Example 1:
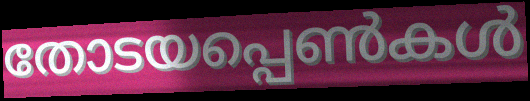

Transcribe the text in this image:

തോടയപ്പെൺകൾ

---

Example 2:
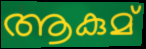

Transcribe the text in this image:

ആകുമ്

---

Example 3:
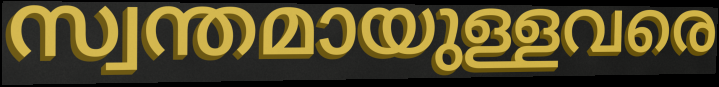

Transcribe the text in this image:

സ്വന്തമായുള്ളവരെ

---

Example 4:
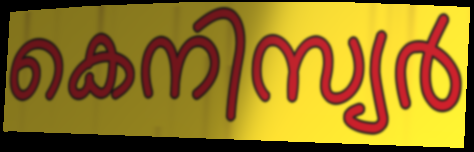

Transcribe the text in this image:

കെനിസ്യർ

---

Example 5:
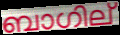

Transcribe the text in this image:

ബാഗില്